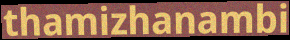
thamizhanambi